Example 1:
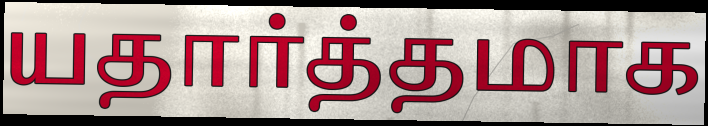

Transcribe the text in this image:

யதார்த்தமாக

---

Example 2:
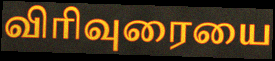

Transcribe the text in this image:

விரிவுரையை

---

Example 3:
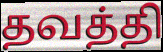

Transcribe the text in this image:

தவத்தி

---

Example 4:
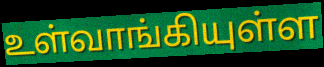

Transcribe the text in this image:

உள்வாங்கியுள்ள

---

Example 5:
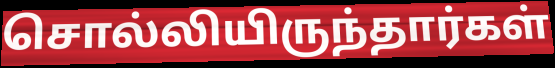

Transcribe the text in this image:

சொல்லியிருந்தார்கள்